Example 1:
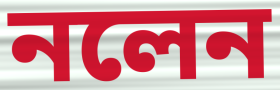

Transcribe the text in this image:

নলেন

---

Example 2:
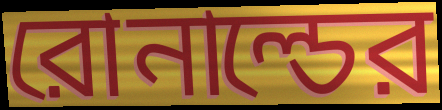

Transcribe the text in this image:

রোনাল্ডের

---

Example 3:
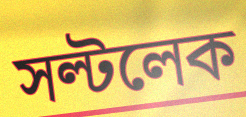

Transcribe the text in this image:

সল্টলেক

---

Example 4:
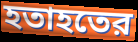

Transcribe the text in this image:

হতাহতের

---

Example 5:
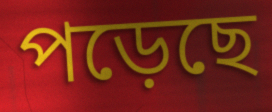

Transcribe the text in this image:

পড়েছে